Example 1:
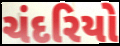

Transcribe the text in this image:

ચંદરિયો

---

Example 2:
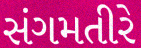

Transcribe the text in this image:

સંગમતીરે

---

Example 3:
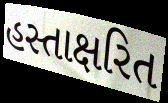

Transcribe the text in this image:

હસ્તાક્ષરિત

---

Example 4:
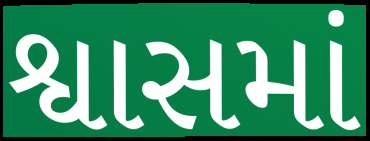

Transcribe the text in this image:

શ્વાસમાં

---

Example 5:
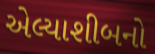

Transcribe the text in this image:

એલ્યાશીબનો